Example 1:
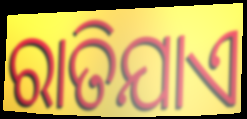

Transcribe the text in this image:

ରାତିଯାଏ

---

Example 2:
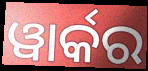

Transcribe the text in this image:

ୱାର୍କର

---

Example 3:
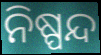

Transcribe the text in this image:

ନିଷ୍ପନ୍ଦ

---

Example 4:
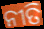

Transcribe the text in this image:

ନୀତି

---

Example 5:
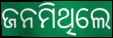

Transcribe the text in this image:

ଜନମିଥିଲେ